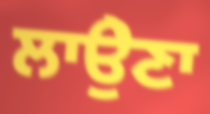
ਲਾਉੇਣਾ